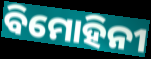
ବିମୋହିନୀ